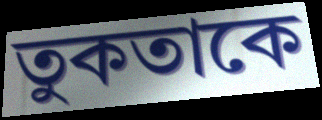
তুকতাকে